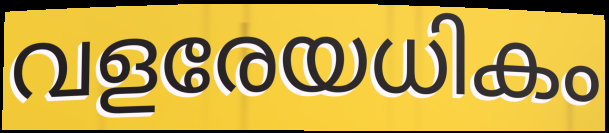
വളരേയധികം